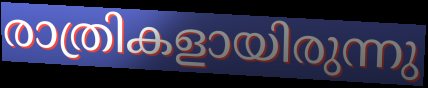
രാത്രികളായിരുന്നു